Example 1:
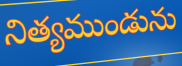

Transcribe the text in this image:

నిత్యముండును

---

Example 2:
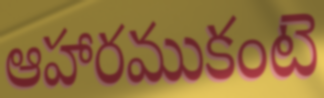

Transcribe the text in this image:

ఆహారముకంటె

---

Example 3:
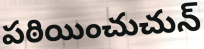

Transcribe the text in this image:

పఠియించుచున్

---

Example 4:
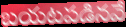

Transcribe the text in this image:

బయటపడినవే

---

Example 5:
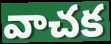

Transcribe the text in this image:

వాచక